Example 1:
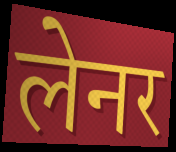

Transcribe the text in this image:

लेनर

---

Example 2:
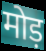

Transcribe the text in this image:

मोड़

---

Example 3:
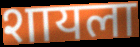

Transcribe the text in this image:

शायला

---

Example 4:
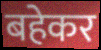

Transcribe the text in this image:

बहेकर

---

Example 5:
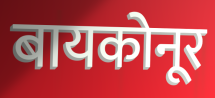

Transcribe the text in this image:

बायकोनूर